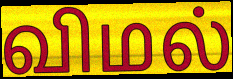
விமல்